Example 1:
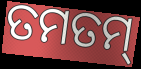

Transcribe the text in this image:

ତମତମ୍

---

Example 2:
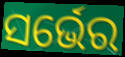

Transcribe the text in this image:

ସର୍ଭେର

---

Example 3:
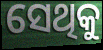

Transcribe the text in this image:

ସେଥିକୁ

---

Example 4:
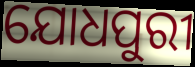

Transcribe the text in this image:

ଯୋଧପୁରୀ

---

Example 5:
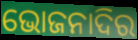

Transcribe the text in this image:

ଭୋଜନାଦିର